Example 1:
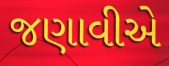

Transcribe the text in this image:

જણાવીએ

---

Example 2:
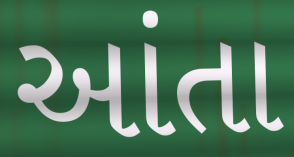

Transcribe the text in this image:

આંતા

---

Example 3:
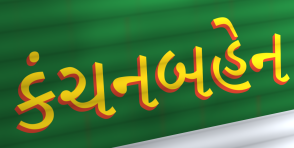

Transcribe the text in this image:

કંચનબહેન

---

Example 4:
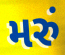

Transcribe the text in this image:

મરું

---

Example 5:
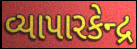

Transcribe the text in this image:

વ્યાપારકેન્દ્ર